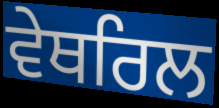
ਵੇਥਰਿਲ